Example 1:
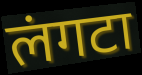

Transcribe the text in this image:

लंगटा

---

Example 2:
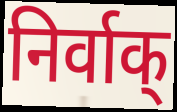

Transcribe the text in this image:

निर्वाक्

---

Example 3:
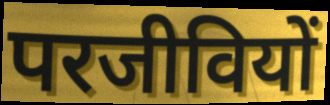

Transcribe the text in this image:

परजीवियों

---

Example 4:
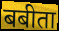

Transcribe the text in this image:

बबीता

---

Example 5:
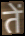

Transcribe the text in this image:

तें